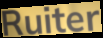
Ruiter